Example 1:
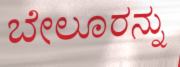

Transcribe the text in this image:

ಬೇಲೂರನ್ನು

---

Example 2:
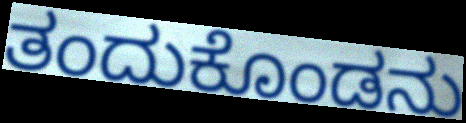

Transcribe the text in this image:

ತಂದುಕೊಂಡನು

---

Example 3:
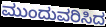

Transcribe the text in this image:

ಮುಂದುವರಿಸಿದ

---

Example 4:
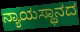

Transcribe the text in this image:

ನ್ಯಾಯಸ್ಥಾನದ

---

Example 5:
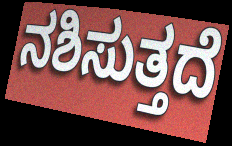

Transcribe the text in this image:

ನಶಿಸುತ್ತದೆ